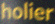
holier